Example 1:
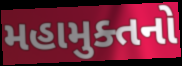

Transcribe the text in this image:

મહામુક્તનો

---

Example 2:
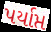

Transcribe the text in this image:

પર્યાપ્ત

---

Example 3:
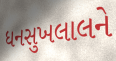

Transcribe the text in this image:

ધનસુખલાલને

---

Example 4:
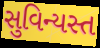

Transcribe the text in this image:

સુવિન્યસ્ત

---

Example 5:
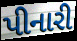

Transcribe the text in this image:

પીનારી